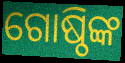
ଗୋଷ୍ଠିଙ୍କ